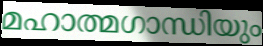
മഹാത്മഗാന്ധിയും